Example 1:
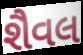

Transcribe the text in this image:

શૈવલ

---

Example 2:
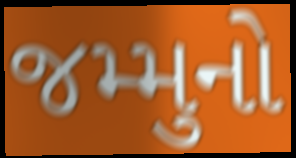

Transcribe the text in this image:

જમ્મુનો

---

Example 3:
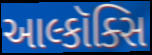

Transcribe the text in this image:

આલ્કૉક્સિ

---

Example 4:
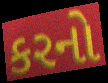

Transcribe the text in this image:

કરનો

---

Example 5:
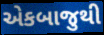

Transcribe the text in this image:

એકબાજુથી